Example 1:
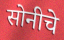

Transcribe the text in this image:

सोनीचे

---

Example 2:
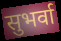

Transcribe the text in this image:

सुभर्वा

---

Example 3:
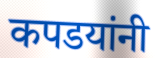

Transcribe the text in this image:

कपडयांनी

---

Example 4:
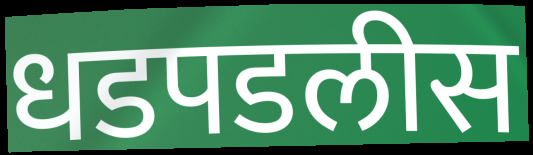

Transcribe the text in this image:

धडपडलीस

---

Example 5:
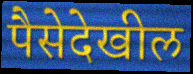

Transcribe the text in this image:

पैसेदेखील